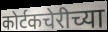
कोर्टकचेरीच्या